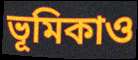
ভূমিকাও